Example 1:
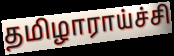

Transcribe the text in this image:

தமிழாராய்ச்சி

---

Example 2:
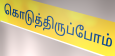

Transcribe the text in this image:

கொடுத்திருப்போம்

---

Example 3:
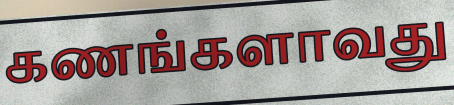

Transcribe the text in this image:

கணங்களாவது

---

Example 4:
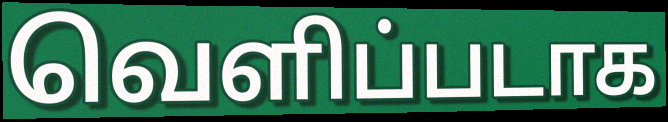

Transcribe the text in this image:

வெளிப்படாக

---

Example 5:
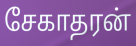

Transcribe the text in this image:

சேகாதரன்